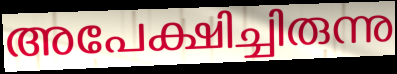
അപേക്ഷിച്ചിരുന്നു